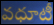
వధూటీ